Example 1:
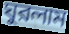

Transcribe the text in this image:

ঘুরলাম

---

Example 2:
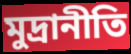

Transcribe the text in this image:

মুদ্রানীতি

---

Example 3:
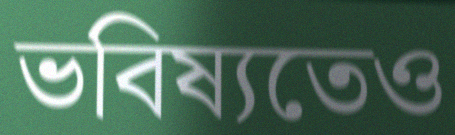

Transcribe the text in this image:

ভবিষ্যতেও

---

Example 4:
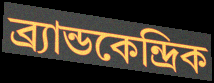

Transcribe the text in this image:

ব্র্যান্ডকেন্দ্রিক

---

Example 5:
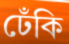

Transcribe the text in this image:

ঢেঁকি